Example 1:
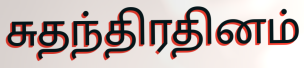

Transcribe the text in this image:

சுதந்திரதினம்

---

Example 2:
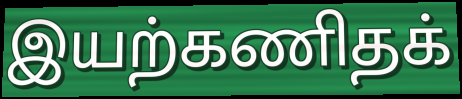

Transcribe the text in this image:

இயற்கணிதக்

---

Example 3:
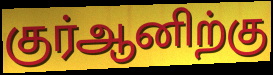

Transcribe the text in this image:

குர்ஆனிற்கு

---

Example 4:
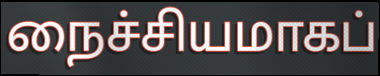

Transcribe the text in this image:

நைச்சியமாகப்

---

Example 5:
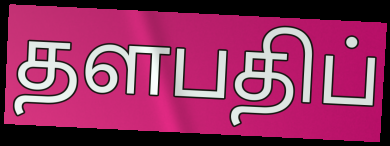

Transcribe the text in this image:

தளபதிப்